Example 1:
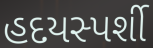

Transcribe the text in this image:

હદયસ્પર્શી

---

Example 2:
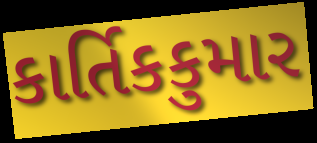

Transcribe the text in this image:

કાર્તિકકુમાર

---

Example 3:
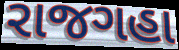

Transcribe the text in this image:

રાજગહા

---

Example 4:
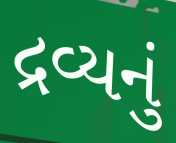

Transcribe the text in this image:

દ્રવ્યનું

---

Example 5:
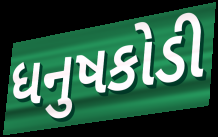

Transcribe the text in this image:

ધનુષકોડી